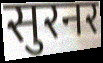
सुरनर